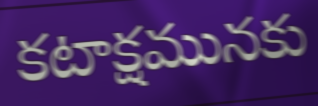
కటాక్షమునకు